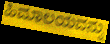
ಹಿಮಾಲಯವನ್ನು